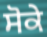
ਸੋਕੇ